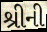
શ્રીની